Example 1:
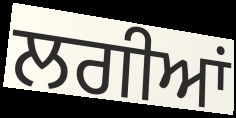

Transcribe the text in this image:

ਲਗੀਆਂ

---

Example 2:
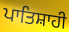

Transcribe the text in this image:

ਪਾਤਿਸ਼ਾਹੀ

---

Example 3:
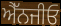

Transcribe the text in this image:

ਐੱਨਜੀਓ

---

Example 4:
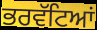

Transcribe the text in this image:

ਭਰਵੱਟਿਆਂ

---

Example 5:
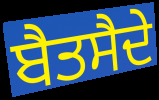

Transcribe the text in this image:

ਬੈਤਸੈਦੇ